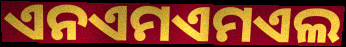
ଏନଏମଏମଏଲ